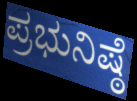
ಪ್ರಭುನಿಷ್ಠೆ